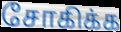
சோகிக்க